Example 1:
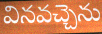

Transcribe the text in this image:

వినవచ్చెను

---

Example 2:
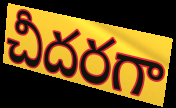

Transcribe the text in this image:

చీదరగా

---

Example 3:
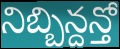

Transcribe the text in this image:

నిబ్బిన్దన్తో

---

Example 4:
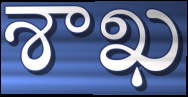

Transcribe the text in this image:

శాఖ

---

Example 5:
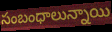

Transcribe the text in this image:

సంబంధాలున్నాయి